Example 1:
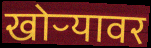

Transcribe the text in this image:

खोऱ्यावर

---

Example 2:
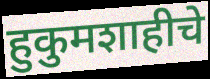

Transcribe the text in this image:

हुकुमशाहीचे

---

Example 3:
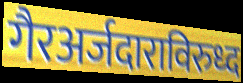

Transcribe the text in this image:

गैरअर्जदाराविरुध्द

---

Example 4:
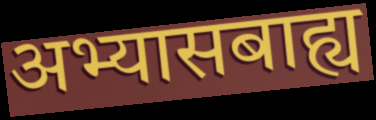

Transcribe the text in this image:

अभ्यासबाह्य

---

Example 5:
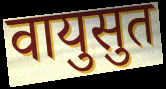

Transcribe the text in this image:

वायुसुत